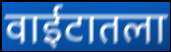
वाईटातला